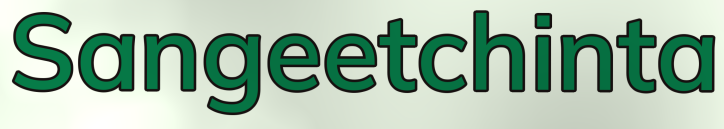
Sangeetchinta